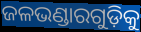
ଜଳଭଣ୍ଡାରଗୁଡ଼ିକୁ